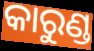
କାରୁଣ୍ଡ